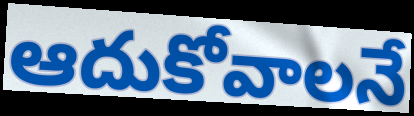
ఆదుకోవాలనే